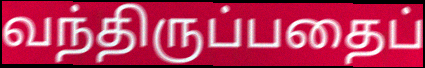
வந்திருப்பதைப்